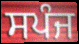
ਸਪੰਜ